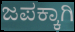
ಜಪಕ್ಕಾಗಿ